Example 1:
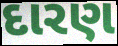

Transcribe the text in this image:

દારણ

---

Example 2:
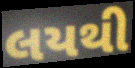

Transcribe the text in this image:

લયથી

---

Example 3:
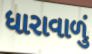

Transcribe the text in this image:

ધારાવાળું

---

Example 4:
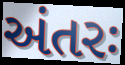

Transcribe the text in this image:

અંતરઃ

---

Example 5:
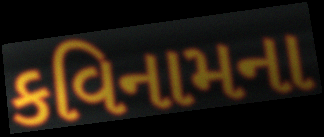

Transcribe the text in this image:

કવિનામના